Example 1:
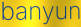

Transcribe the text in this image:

banyun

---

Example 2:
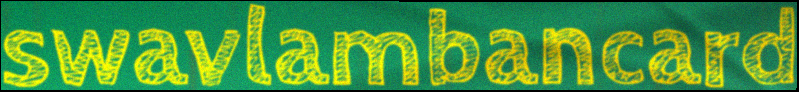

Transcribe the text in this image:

swavlambancard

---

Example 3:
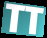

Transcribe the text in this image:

TT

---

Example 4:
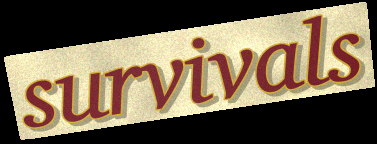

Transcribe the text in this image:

survivals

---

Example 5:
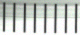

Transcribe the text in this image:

IIIIIIII